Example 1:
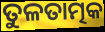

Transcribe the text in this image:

ତୁଳତାତ୍ମକ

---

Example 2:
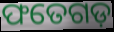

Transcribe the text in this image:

ଫତେଗଡ଼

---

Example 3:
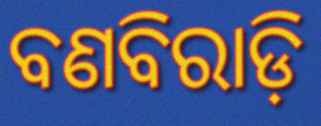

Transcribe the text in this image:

ବଣବିରାଡ଼ି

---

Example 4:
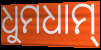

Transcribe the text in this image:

ଧୁମଧାମ୍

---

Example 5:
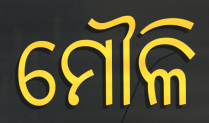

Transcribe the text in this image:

ମୌଳି